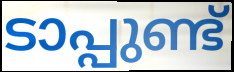
ടാപ്പുണ്ട്